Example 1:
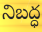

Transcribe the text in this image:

నిబద్ధ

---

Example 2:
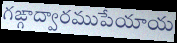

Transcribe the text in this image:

గఙ్గాద్వారముపేయాయ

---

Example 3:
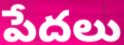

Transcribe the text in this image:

పేదలు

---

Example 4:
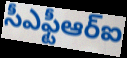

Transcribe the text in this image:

సీఎఫ్టీఆర్ఐ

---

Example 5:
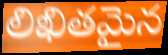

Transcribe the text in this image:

లిఖితమైన